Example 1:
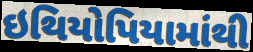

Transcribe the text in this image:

ઇથિયોપિયામાંથી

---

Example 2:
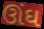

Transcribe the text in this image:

ઊંઘ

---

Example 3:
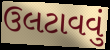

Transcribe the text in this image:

ઉલટાવવું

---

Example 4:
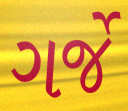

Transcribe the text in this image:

ગર્જે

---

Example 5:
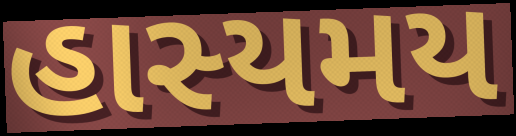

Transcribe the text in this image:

હાસ્યમય